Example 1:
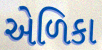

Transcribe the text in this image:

એળિકા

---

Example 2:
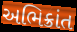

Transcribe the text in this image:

અભિક્રાંત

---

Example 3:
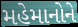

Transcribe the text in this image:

મહેમાનોને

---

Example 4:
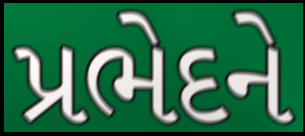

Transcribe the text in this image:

પ્રભેદને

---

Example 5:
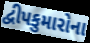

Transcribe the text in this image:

દ્વીપકુમારોના